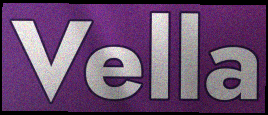
Vella